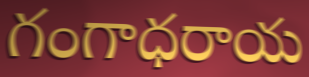
గంగాధరాయ